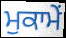
ਮੁਕਾਮੇਂ